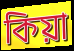
কিয়া